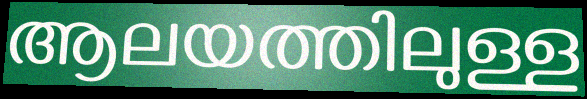
ആലയത്തിലുള്ള